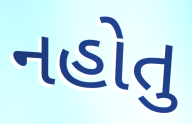
નહોતુ